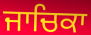
ਜਾਚਿਕਾ